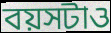
বয়সটাও